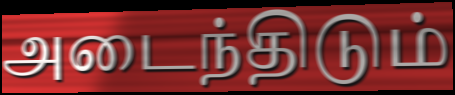
அடைந்திடும்